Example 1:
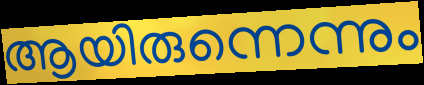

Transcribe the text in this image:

ആയിരുന്നെന്നും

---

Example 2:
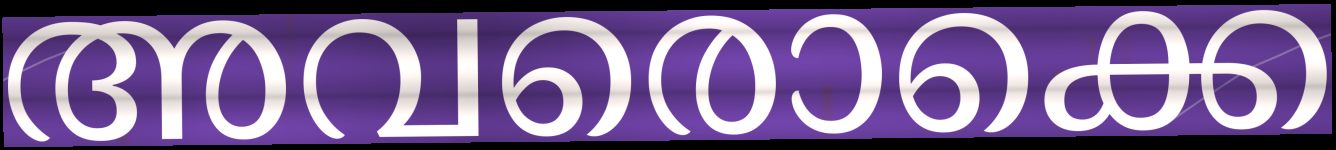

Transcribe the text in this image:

അവരൊക്കെ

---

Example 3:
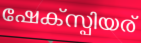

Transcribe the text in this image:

ഷേക്സ്പിയര്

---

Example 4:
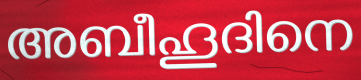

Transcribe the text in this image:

അബീഹൂദിനെ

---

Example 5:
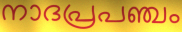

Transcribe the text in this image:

നാദപ്രപഞ്ചം